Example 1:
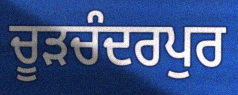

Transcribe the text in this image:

ਚੂੜਚੰਦਰਪੁਰ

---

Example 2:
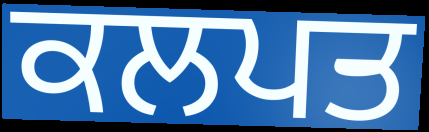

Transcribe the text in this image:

ਕਲਪਤ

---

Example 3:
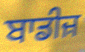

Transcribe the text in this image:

ਬਾਡੀਜ਼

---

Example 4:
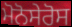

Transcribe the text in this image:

ਮੋਨੋਸੇਰੋਸ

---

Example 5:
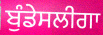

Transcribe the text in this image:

ਬੁੰਡੇਸਲੀਗਾ